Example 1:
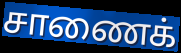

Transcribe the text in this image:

சாணைக்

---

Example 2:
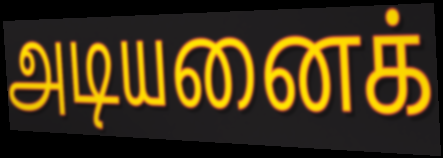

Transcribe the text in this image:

அடியனைக்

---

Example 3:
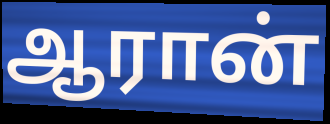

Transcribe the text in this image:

ஆரான்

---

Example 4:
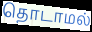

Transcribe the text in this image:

தொடாமல்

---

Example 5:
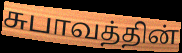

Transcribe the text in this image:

சுபாவத்தின்